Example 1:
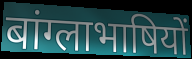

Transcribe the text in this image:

बांग्लाभाषियों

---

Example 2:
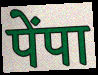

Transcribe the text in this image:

पेंपा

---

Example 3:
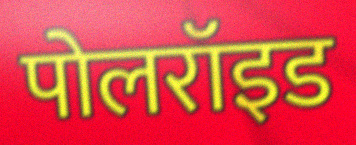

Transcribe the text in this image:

पोलरॉइड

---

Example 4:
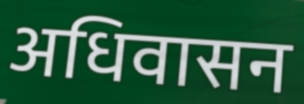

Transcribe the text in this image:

अधिवासन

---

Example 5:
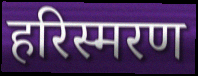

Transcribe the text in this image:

हरिस्मरण